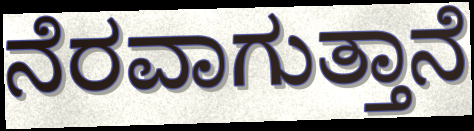
ನೆರವಾಗುತ್ತಾನೆ